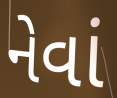
નેવાં